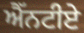
ਐੱਨਟੀਏ